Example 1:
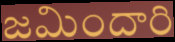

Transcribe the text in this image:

జమిందారి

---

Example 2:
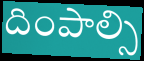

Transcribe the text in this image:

దింపాల్సి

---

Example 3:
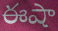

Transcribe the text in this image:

ఈషా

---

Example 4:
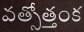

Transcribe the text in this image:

వత్సోత్తంక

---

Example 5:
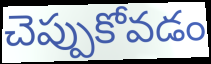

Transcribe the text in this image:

చెప్పుకోవడం